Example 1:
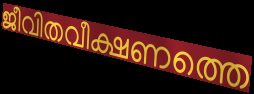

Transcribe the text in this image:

ജീവിതവീക്ഷണത്തെ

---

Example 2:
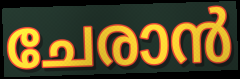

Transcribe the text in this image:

ചേരാൻ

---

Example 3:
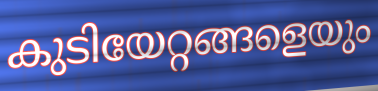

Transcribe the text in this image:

കുടിയേറ്റങ്ങളെയും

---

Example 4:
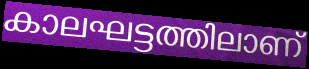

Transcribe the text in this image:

കാലഘട്ടത്തിലാണ്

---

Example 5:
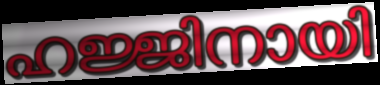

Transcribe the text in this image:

ഹജ്ജിനായി